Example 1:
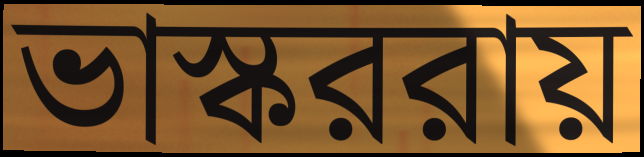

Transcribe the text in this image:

ভাস্কররায়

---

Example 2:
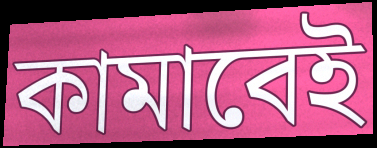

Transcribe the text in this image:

কামাবেই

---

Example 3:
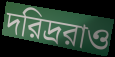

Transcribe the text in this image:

দরিদ্ররাও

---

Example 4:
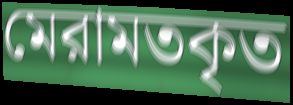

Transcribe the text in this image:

মেরামতকৃত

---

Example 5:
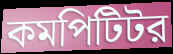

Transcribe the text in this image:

কমপিটিটর